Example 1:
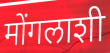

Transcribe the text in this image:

मोंगलाशी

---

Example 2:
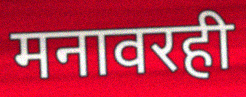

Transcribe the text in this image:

मनावरही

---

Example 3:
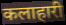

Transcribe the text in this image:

कलाहारी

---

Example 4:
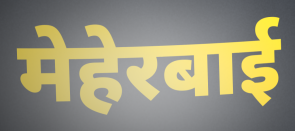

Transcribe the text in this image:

मेहेरबाई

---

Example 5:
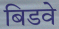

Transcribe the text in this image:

बिडवे